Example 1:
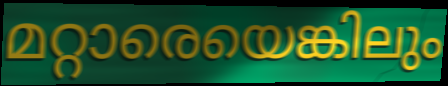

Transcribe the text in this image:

മറ്റാരെയെങ്കിലും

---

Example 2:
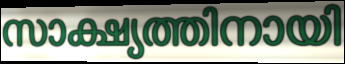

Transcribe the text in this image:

സാക്ഷ്യത്തിനായി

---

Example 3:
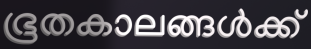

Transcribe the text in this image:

ഭൂതകാലങ്ങൾക്ക്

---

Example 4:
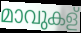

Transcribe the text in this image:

മാവുകള്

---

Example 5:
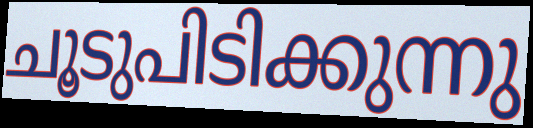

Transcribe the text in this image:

ചൂടുപിടിക്കുന്നു